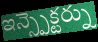
ఇన్స్పెక్టర్ను